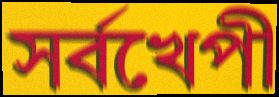
সর্বখেপী